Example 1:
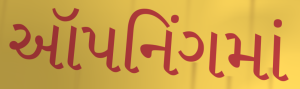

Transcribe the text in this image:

ઑપનિંગમાં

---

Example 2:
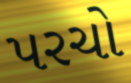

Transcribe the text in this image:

પરચો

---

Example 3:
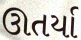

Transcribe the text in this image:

ઊતર્યા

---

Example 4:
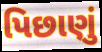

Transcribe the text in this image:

પિછાણું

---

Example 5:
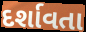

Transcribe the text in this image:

દર્શાવતા